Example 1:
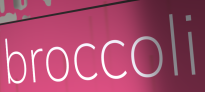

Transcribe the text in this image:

broccoli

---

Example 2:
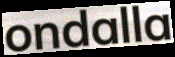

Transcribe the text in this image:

ondalla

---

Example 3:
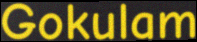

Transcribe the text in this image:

Gokulam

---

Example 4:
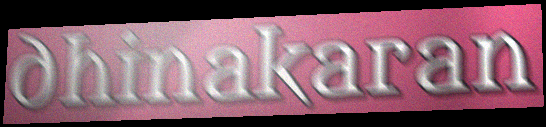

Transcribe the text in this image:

dhinakaran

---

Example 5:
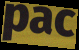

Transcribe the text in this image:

pac